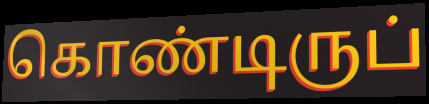
கொண்டிருப்